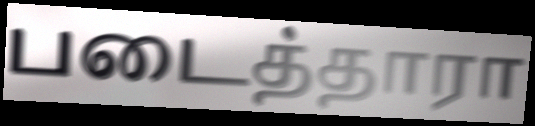
படைத்தாரா